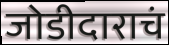
जोडीदाराचं